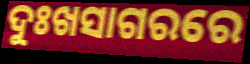
ଦୁଃଖସାଗରରେ